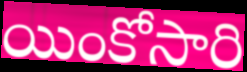
యింకోసారి